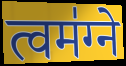
त्वम॑ग्ने